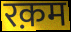
रक़म